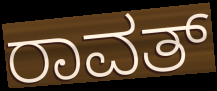
ರಾವತ್